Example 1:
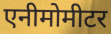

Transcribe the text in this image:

एनीमोमीटर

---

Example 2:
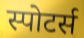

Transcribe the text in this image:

स्पोटर्स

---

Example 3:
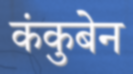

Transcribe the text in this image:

कंकुबेन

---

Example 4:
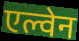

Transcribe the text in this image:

एल्वेन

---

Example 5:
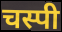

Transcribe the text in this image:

चस्पी